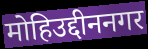
मोहिउद्दीननगर